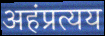
अहंप्रत्यय